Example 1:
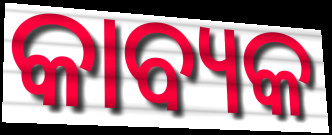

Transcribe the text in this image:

କାବ୍ୟକ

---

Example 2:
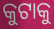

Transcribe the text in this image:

କୁଟାକୁ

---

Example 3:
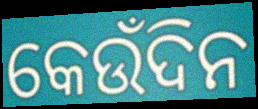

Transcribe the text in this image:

କେଉଁଦିନ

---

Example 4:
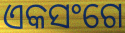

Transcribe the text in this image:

ଏକସଂଗେ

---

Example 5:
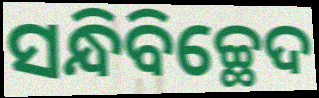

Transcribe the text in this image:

ସନ୍ଧିବିଚ୍ଛେଦ